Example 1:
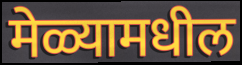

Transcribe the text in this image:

मेळ्यामधील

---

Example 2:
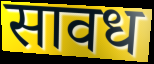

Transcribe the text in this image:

सावध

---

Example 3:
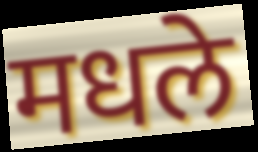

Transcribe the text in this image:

मधले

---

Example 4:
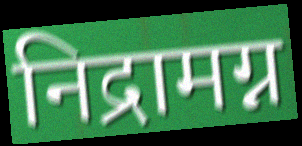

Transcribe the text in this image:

निद्रामग्न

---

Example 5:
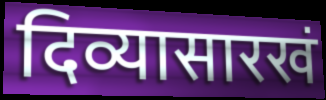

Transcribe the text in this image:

दिव्यासारखं